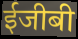
ईजीबी